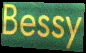
Bessy